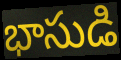
భాసుడి